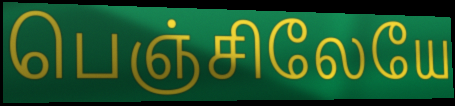
பெஞ்சிலேயே